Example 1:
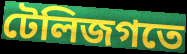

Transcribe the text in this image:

টেলিজগতে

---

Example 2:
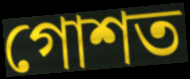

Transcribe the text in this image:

গোশত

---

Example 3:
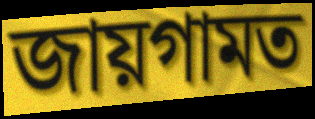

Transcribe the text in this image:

জায়গামত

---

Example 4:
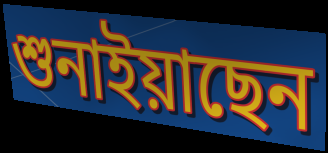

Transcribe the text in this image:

শুনাইয়াছেন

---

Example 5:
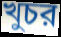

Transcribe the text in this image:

খুচর